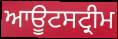
ਆਊਟਸਟ੍ਰੀਮ